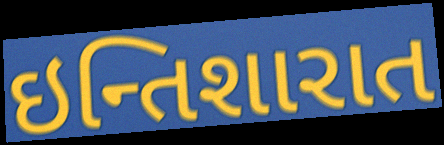
ઇન્તિશારાત